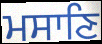
ਮਸਾਣਿ